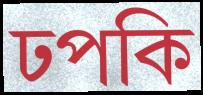
ঢপকি